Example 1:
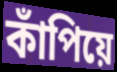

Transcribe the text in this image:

কাঁপিয়ে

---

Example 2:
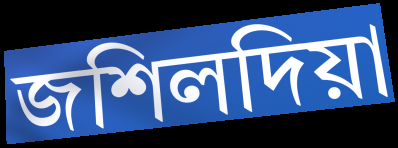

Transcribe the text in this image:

জশিলদিয়া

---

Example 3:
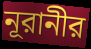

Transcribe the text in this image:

নূরানীর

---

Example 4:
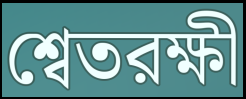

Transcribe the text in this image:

শ্বেতরক্ষী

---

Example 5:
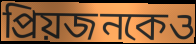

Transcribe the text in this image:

প্রিয়জনকেও